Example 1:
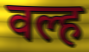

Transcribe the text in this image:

वल्ह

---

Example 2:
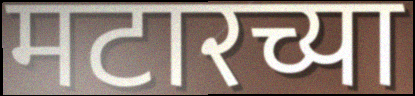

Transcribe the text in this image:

मटारच्या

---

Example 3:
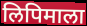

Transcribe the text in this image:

लिपिमाला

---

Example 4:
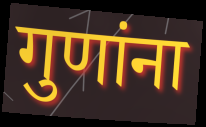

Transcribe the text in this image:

गुणांना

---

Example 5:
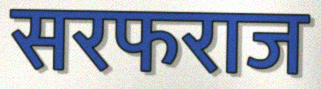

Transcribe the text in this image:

सरफराज